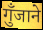
गुँजाने